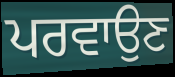
ਪਰਵਾਉਣ